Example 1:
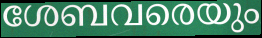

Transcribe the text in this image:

ശേബവരെയും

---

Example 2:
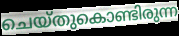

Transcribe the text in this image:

ചെയ്തുകൊണ്ടിരുന്ന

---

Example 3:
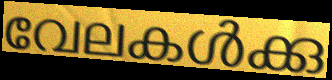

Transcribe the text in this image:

വേലകൾക്കു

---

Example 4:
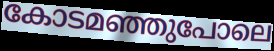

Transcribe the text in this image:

കോടമഞ്ഞുപോലെ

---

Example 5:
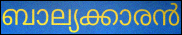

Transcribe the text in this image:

ബാല്യക്കാരൻ